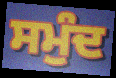
ਸਮੁੰਦ